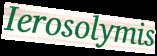
Ierosolymis